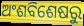
ଅଂଶବିଶେଷରୁ